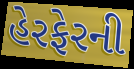
હેરફેરની